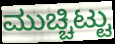
ಮುಚ್ಚಿಟ್ಟು